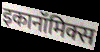
इकानॉमिक्स